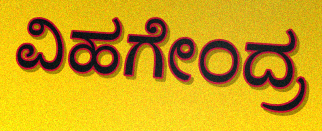
ವಿಹಗೇಂದ್ರ